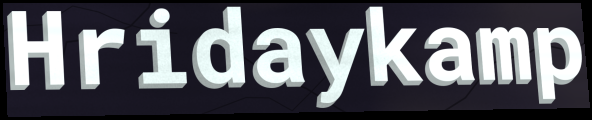
Hridaykamp